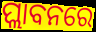
ପ୍ଲାବନରେ